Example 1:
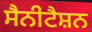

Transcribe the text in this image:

ਸੈਨੀਟੈਸ਼ਨ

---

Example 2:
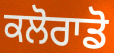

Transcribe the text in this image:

ਕਲੋਰਾਡੋ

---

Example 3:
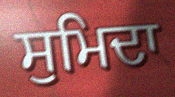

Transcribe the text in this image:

ਸੁਮਿਦਾ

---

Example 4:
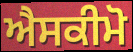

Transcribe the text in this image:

ਐਸਕੀਮੋ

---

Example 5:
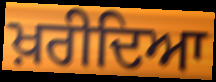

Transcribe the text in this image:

ਖ਼ਰੀਦਿਆ